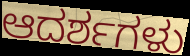
ಆದರ್ಶಗಳು